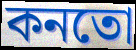
কনতো